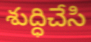
శుద్ధిచేసి